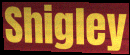
Shigley